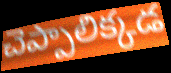
చెప్పాలిక్కడ